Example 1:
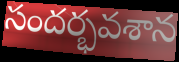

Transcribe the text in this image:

సందర్భవశాన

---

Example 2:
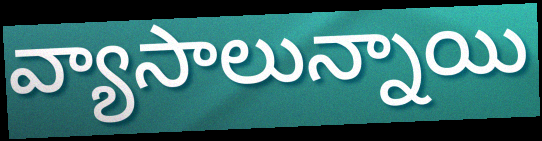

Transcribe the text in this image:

వ్యాసాలున్నాయి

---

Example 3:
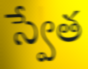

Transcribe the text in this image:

స్వేత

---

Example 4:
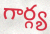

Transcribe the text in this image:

గార్గ్య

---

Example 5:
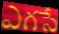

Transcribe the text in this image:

ఎగసే